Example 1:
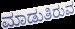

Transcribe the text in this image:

ಮಾಡುತಿರುವ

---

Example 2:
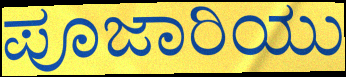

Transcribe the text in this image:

ಪೂಜಾರಿಯು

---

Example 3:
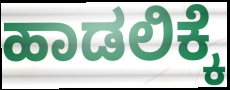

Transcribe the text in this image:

ಹಾಡಲಿಕ್ಕೆ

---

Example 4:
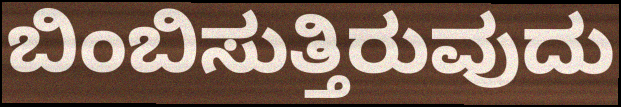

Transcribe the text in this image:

ಬಿಂಬಿಸುತ್ತಿರುವುದು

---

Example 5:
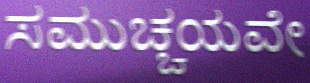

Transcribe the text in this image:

ಸಮುಚ್ಚಯವೇ